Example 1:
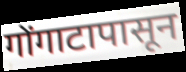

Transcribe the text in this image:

गोंगाटापासून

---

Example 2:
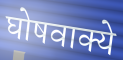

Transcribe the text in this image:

घोषवाक्ये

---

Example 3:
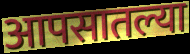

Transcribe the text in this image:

आपसातल्या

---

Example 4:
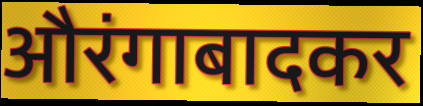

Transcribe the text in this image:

औरंगाबादकर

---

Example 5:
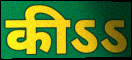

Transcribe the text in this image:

कीऽऽ